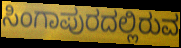
ಸಿಂಗಾಪುರದಲ್ಲಿರುವ